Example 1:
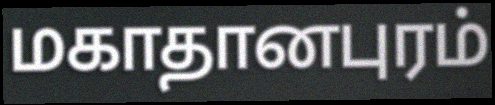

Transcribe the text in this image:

மகாதானபுரம்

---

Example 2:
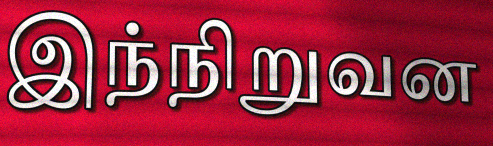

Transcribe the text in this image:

இந்நிறுவன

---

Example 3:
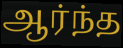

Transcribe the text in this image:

ஆர்ந்த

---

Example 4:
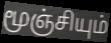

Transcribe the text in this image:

மூஞ்சியும்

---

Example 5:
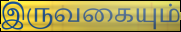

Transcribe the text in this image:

இருவகையும்